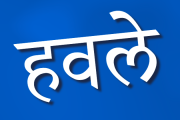
हवले